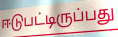
ஈடுபட்டிருப்பது